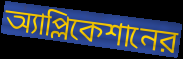
অ্যাপ্লিকেশানের